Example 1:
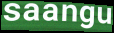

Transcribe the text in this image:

saangu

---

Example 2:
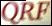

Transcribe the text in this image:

QRF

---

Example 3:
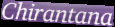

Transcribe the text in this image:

Chirantana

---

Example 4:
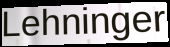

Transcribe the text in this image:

Lehninger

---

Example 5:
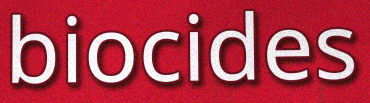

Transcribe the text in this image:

biocides